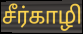
சீர்காழி